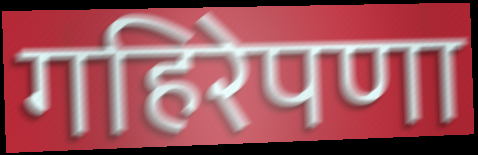
गहिरेपणा